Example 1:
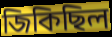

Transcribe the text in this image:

জিকিছিল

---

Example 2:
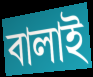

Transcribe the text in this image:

বালাই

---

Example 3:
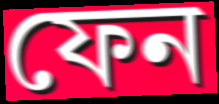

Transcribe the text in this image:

ফেন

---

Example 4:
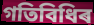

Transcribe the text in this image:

গতিবিধিৰ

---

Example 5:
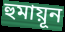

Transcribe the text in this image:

হুমায়ূন